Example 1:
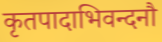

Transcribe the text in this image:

कृतपादाभिवन्दनौ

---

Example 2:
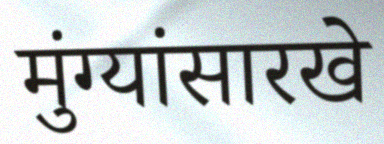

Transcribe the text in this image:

मुंग्यांसारखे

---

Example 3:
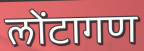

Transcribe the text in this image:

लोंटागण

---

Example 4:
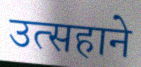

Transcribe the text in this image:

उत्सहाने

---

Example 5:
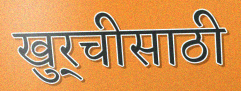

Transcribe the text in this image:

खुर्चीसाठी